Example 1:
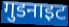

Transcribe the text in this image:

गुडनाइट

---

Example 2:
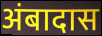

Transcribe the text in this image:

अंबादास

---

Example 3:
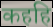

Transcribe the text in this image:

कहहि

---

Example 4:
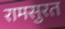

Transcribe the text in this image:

रामसुरत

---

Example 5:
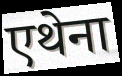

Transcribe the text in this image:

एथेना